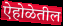
ऐहोळेतील